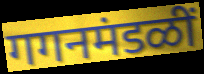
गगनमंडळीं